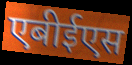
एबीईएस